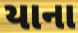
યાના